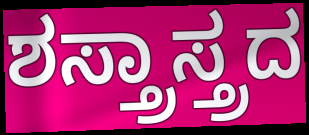
ಶಸ್ತ್ರಾಸ್ತ್ರದ